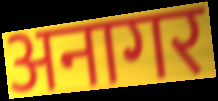
अनागर